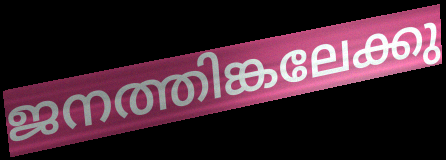
ജനത്തിങ്കലേക്കു